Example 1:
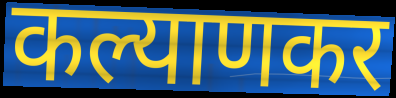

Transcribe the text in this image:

कल्याणकर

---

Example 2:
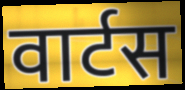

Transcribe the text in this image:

वार्टस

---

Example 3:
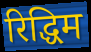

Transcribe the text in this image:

रिद्धिम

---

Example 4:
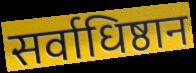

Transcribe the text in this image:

सर्वाधिष्ठान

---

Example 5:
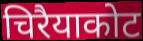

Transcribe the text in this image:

चिरैयाकोट